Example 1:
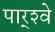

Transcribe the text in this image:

पार्श्वे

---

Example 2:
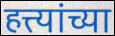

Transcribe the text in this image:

हत्त्यांच्या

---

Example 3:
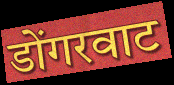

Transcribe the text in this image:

डोंगरवाट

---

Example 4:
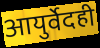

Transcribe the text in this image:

आयुर्वेदही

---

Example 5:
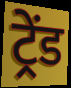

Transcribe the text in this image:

ट्रेंड